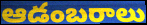
ఆడంబరాలు